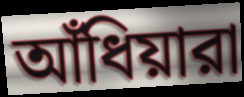
আঁধিয়ারা